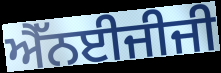
ਐੱਨਈਜੀਜੀ